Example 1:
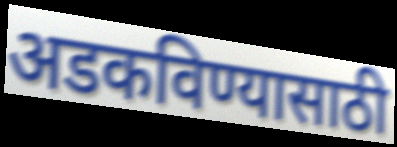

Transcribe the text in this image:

अडकविण्यासाठी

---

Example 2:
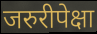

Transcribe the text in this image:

जरुरीपेक्षा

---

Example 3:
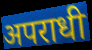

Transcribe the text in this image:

अपराधी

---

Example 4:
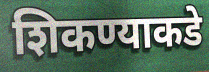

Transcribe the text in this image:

शिकण्याकडे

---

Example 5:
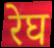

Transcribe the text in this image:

रेघ